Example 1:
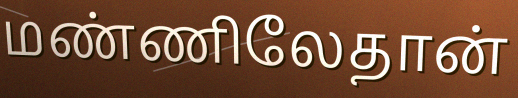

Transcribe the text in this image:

மண்ணிலேதான்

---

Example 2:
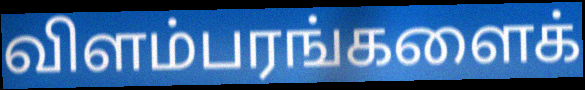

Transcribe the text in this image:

விளம்பரங்களைக்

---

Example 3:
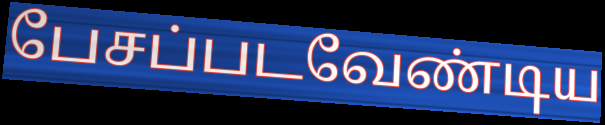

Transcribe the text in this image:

பேசப்படவேண்டிய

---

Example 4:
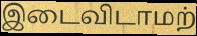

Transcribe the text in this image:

இடைவிடாமற்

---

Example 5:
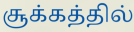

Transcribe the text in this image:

சூக்கத்தில்